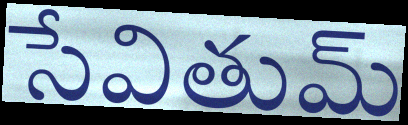
సేవితుమ్